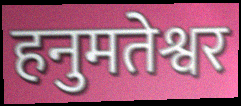
हनुमतेश्वर